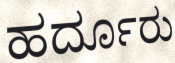
ಹರ್ದೂರು